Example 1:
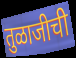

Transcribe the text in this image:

तुळाजीची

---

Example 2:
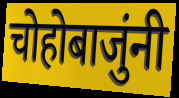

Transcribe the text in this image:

चोहोबाजुंनी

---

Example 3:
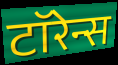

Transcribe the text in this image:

टॉरेन्स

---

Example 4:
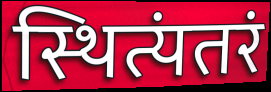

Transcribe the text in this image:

स्थित्यंतरं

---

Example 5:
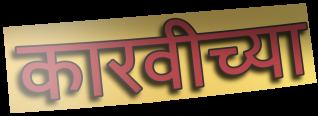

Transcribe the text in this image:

कारवीच्या